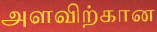
அளவிற்கான